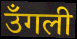
उँगली